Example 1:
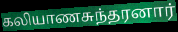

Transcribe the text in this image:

கலியாணசுந்தரனார்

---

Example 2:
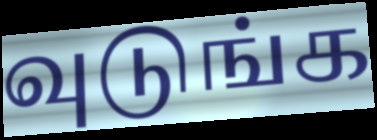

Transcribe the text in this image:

வுடுங்க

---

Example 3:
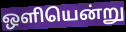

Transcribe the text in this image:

ஒளியென்று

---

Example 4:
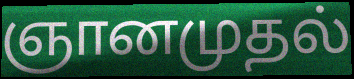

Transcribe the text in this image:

ஞானமுதல்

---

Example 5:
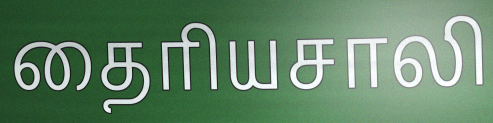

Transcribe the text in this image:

தைரியசாலி